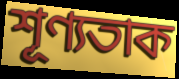
শূণ্যতাক